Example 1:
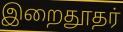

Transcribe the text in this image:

இறைதூதர்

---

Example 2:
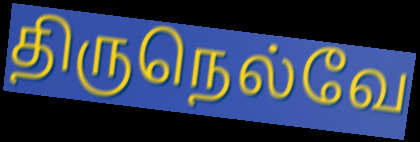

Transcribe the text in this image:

திருநெல்வே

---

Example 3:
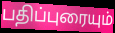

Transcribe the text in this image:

பதிப்புரையும்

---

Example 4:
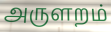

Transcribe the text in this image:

அருளறம்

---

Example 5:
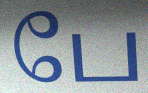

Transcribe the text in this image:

பே